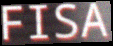
FISA